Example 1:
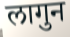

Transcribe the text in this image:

लागुन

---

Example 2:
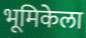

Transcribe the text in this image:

भूमिकेला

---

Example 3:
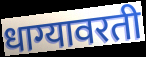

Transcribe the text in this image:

धाग्यावरती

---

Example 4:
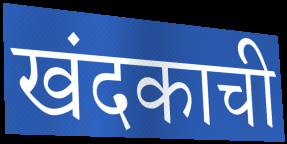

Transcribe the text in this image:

खंदकाची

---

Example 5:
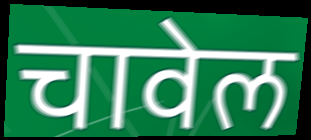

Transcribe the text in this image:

चावेल